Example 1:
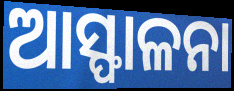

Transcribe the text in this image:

ଆସ୍ଫାଳନା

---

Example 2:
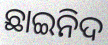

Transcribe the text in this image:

ଛାଇନିଦ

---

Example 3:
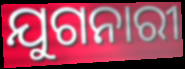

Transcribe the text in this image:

ଯୁଗନାରୀ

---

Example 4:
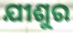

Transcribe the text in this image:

ଯୀଶୁର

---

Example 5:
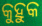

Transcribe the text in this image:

କୁହୁକ